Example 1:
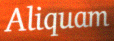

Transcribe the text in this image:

Aliquam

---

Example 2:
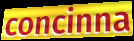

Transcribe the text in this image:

concinna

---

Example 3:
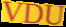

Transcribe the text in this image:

VDU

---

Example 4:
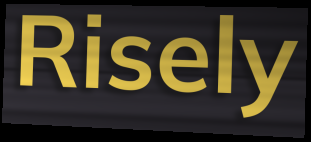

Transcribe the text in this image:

Risely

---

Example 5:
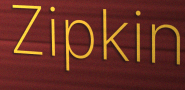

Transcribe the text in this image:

Zipkin